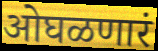
ओघळणारं